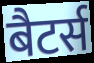
बैटर्स